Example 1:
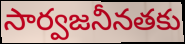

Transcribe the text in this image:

సార్వజనీనతకు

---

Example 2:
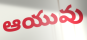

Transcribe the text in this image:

ఆయువు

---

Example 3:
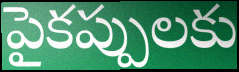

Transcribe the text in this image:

పైకప్పులకు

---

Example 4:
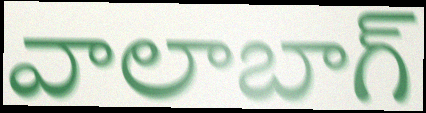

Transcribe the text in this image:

వాలాబాగ్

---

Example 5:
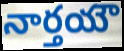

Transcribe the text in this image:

నార్తయౌ